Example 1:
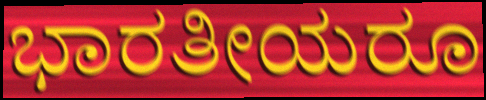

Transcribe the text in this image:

ಭಾರತೀಯರೂ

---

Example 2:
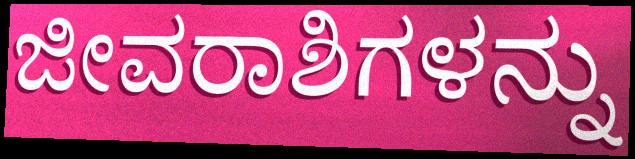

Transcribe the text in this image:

ಜೀವರಾಶಿಗಳನ್ನು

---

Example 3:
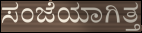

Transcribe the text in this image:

ಸಂಜೆಯಾಗಿತ್ತ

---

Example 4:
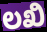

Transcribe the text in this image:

ಲಖಿ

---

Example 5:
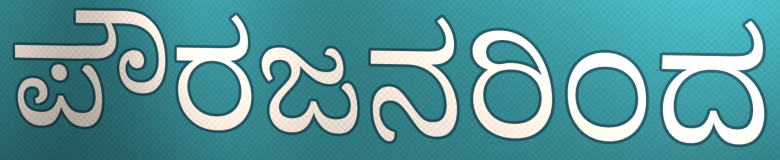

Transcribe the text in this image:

ಪೌರಜನರಿಂದ